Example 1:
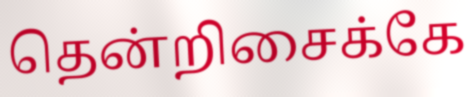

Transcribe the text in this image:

தென்றிசைக்கே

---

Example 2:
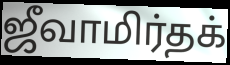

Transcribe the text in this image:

ஜீவாமிர்தக்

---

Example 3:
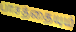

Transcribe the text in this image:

பாசத்தையும்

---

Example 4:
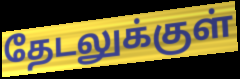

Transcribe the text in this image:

தேடலுக்குள்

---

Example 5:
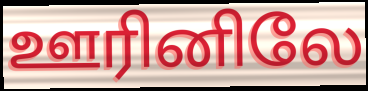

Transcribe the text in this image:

ஊரினிலே